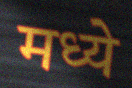
मध्ये